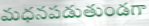
మధనపడుతుండగా